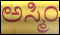
ಅಸ್ಮಿಂ